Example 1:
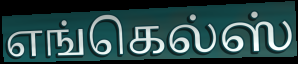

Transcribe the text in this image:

எங்கெல்ஸ்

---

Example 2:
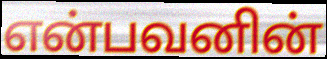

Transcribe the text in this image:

என்பவனின்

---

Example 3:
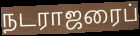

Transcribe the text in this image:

நடராஜரைப்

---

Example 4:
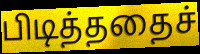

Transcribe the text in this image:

பிடித்ததைச்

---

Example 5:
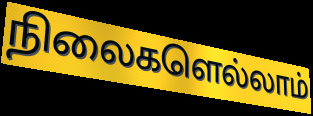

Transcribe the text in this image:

நிலைகளெல்லாம்